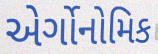
એર્ગોનોમિક